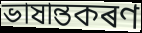
ভাষান্তকৰণ